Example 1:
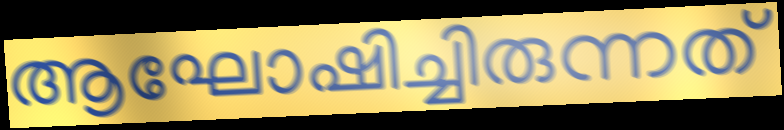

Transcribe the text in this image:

ആഘോഷിച്ചിരുന്നത്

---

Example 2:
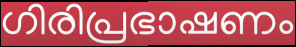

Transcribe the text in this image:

ഗിരിപ്രഭാഷണം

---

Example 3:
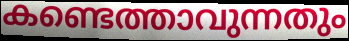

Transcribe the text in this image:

കണ്ടെത്താവുന്നതും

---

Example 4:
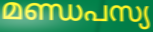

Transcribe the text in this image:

മണ്ഡപസ്യ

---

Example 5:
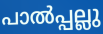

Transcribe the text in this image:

പാൽപ്പല്ലു